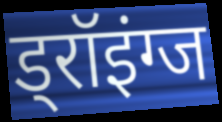
ड्रॉइंग्ज